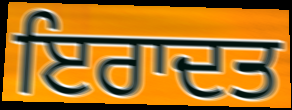
ਇਰਾਦਤ